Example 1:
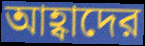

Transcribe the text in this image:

আহ্বাদের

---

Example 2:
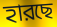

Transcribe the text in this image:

হারছে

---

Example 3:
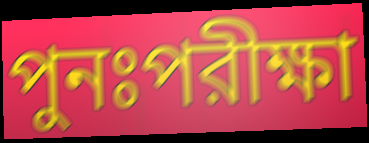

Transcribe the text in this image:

পুনঃপরীক্ষা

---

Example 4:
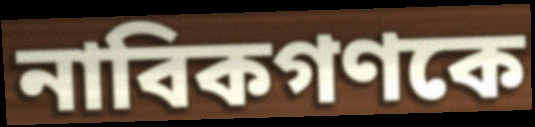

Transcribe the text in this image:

নাবিকগণকে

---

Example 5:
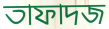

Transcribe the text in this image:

তাফাদজ